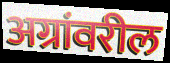
अग्रांवरील